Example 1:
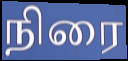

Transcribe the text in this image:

நிரை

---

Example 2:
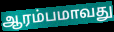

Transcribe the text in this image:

ஆரம்பமாவது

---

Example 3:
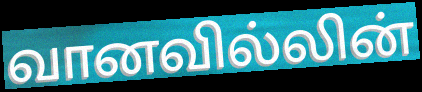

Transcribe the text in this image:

வானவில்லின்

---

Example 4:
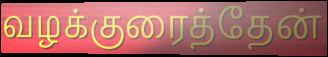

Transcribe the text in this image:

வழக்குரைத்தேன்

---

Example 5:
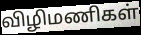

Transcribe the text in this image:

விழிமணிகள்